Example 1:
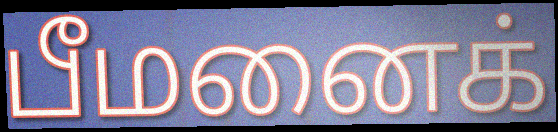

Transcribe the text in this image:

பீமனைக்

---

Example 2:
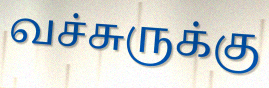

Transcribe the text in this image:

வச்சுருக்கு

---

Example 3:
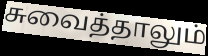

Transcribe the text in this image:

சுவைத்தாலும்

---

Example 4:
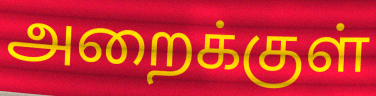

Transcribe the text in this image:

அறைக்குள்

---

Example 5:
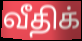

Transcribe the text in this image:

வீதிக்